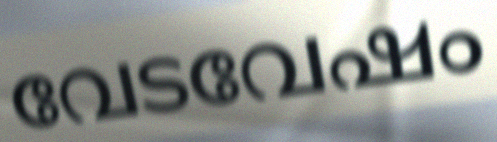
വേടവേഷം